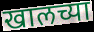
खालच्या